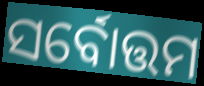
ସର୍ବୋତ୍ତମ